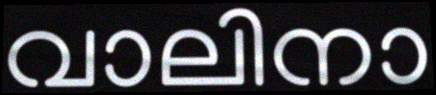
വാലിനാ